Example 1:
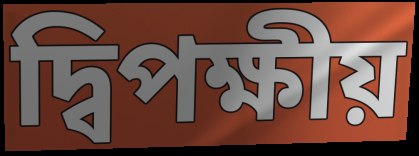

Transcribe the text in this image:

দ্বিপক্ষীয়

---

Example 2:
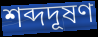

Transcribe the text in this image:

শব্দদূষণ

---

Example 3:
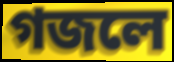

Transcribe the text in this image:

গজলে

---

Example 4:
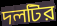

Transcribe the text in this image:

দলটির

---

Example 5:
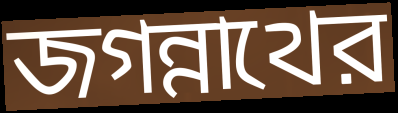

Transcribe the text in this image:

জগন্নাথের